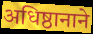
अधिष्ठानाने